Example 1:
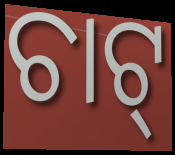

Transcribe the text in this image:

ଚାଟ୍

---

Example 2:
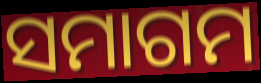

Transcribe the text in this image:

ସମାଗମ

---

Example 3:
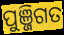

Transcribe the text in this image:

ପୁଞ୍ଜିଗତ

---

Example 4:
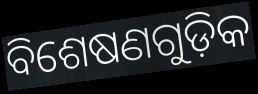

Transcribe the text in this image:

ବିଶେଷଣଗୁଡ଼ିକ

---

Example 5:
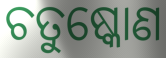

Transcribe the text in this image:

ଚତୁଷ୍କୋଣ